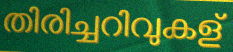
തിരിച്ചറിവുകള്